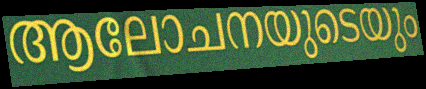
ആലോചനയുടെയും